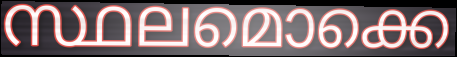
സ്ഥലമൊക്കെ